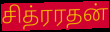
சித்ரரதன்